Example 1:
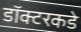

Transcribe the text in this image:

डॉक्टरकडे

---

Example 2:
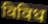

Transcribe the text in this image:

विविध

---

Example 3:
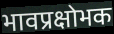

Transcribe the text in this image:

भावप्रक्षोभक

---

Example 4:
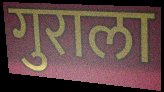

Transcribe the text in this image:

गुराला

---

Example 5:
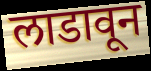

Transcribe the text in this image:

लाडावून